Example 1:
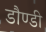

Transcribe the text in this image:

डौण्डी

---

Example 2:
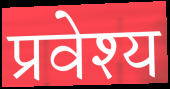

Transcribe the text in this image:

प्रवेश्य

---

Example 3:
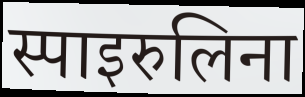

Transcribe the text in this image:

स्पाइरुलिना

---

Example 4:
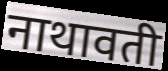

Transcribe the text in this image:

नाथावती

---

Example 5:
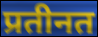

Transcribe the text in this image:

प्रतीनत